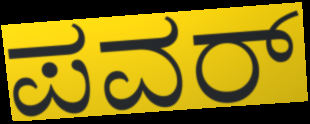
ಪವರ್